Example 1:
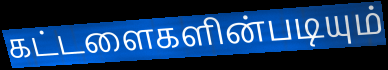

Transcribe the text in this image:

கட்டளைகளின்படியும்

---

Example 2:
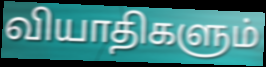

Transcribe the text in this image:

வியாதிகளும்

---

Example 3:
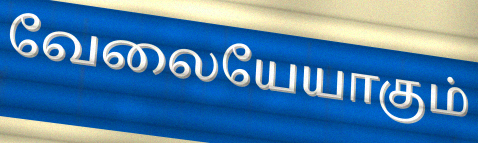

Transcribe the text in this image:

வேலையேயாகும்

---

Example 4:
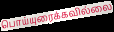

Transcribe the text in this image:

பொய்யுரைக்கவில்லை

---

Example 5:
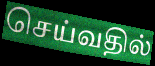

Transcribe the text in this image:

செய்வதில்